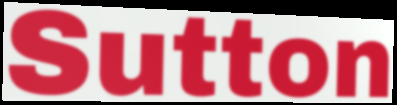
Sutton